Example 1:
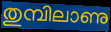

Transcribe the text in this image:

തുമ്പിലാണു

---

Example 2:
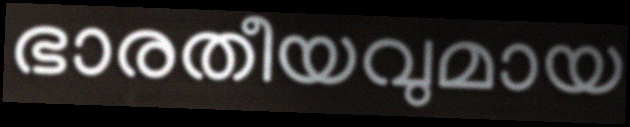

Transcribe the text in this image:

ഭാരതീയവുമായ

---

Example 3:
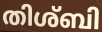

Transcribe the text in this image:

തിശ്ബി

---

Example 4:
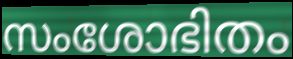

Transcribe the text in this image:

സംശോഭിതം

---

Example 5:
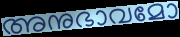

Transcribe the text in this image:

അനുഭാവമോ